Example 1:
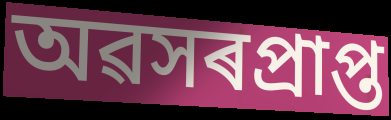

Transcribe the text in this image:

অৱসৰপ্ৰাপ্ত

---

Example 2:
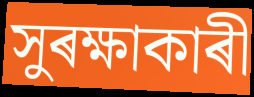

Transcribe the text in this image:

সুৰক্ষাকাৰী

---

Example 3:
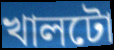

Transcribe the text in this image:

খালটো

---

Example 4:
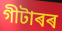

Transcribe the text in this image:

গীটাৰৰ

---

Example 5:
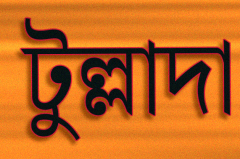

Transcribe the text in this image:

টুল্লাদা